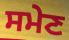
ਸਮੇਣ